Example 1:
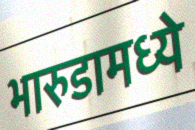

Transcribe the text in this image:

भारुडामध्ये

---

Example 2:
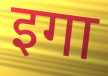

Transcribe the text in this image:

इगा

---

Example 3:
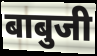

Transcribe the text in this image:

बाबुजी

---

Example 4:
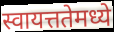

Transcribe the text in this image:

स्वायत्ततेमध्ये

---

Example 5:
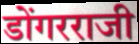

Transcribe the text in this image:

डोंगरराजी